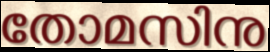
തോമസിനു